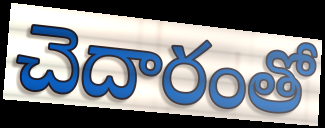
చెదారంతో